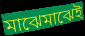
মাঝেমাঝেই